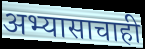
अभ्यासाचाही